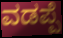
ವಡಪ್ಪೆ